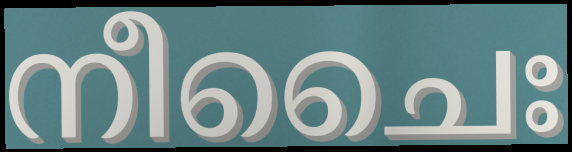
നീചൈഃ